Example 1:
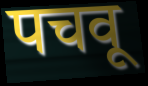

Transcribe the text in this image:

पचवू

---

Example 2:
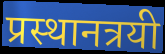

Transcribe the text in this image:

प्रस्थानत्रयी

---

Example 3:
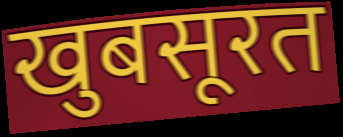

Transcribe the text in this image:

खुबसूरत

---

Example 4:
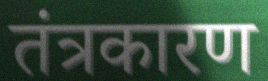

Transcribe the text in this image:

तंत्रकारण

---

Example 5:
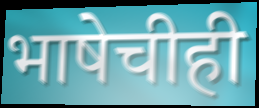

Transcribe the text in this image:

भाषेचीही